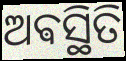
ଅଵସ୍ଥିତି